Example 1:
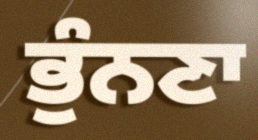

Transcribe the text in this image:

ਭੁੰਨਣਾ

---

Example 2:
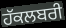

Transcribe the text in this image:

ਹੱਕਲਬਰੀ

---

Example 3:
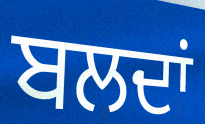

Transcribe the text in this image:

ਬਲਦਾਂ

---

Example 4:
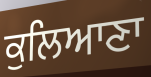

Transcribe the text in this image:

ਕੁਲਿਆਣਾ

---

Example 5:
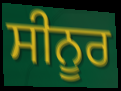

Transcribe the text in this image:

ਸੀਨੂਰ